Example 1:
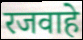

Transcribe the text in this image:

रजवाहे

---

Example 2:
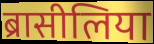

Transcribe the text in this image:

ब्रासीलिया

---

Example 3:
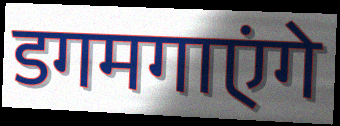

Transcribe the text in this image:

डगमगाएंगे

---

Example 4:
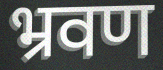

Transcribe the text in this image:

भ्रवण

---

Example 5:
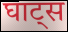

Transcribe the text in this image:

घाट्स